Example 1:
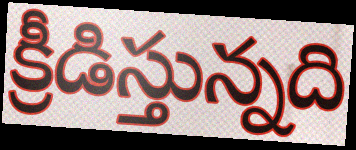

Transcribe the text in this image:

క్రీడిస్తున్నది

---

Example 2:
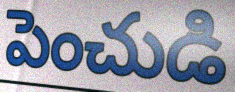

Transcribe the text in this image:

పెంచుడి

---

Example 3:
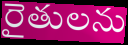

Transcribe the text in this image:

రైతులను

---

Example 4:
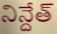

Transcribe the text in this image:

నిన్దేత్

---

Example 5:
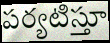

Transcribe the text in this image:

పర్యటిస్తూ